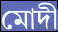
মোদী